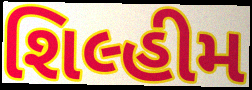
શિલ્હીમ